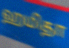
ஹமிதா